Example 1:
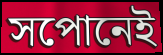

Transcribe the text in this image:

সপোনেই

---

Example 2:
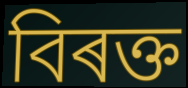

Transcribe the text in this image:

বিৰক্ত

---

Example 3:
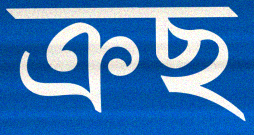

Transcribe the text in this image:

ক্ৰছ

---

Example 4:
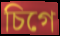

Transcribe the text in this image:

চিগে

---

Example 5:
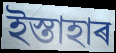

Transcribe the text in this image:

ইস্তাহাৰ